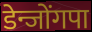
डेन्जोंगपा